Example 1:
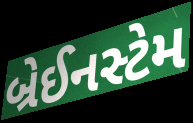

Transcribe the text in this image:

બ્રેઈનસ્ટેમ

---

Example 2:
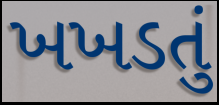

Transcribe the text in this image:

ખખડતું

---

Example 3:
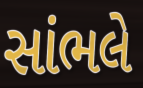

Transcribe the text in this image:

સાંભલે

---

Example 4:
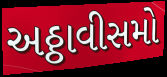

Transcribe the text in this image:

અઠ્ઠાવીસમો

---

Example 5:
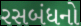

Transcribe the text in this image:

રસબંધનો